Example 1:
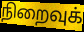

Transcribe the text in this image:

நிறைவுக்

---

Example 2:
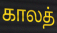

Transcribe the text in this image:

காலத்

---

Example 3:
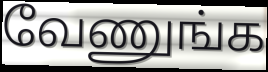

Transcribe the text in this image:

வேணுங்க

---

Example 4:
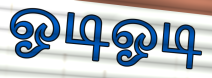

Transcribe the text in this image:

ஓடிஓடி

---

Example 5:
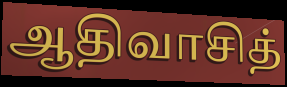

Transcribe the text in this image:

ஆதிவாசித்